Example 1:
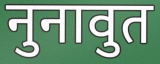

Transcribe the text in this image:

नुनावुत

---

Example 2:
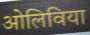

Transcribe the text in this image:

ओलिविया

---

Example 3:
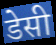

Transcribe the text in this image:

डेसी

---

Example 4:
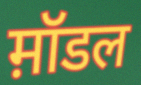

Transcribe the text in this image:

म़ॉडल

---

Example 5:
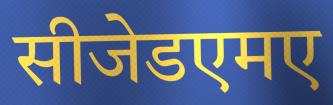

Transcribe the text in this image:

सीजेडएमए